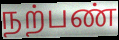
நற்பண்